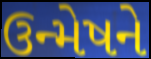
ઉન્મેષને